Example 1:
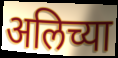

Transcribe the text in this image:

अलिच्या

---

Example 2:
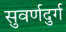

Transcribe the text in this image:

सुवर्णदुर्ग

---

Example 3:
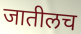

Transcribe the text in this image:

जातीलच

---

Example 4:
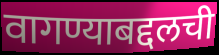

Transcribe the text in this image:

वागण्याबद्दलची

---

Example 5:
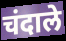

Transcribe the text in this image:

चंदाले